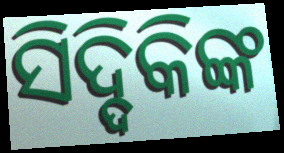
ସିଦ୍ଦିକିଙ୍କ